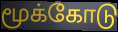
மூக்கோடு